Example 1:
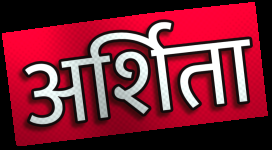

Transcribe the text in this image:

अर्शिता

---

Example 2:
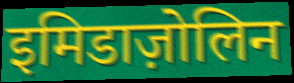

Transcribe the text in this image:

इमिडाज़ोलिन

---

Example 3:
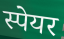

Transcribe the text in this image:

स्पेयर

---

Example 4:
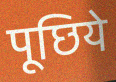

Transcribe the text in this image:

पूछिये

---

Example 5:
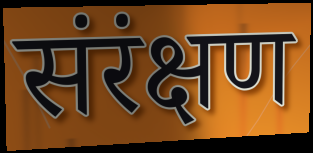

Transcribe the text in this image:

संरंक्षण